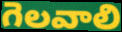
గెలవాలి